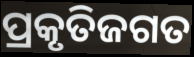
ପ୍ରକୃତିଜଗତ